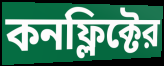
কনফ্লিক্টের